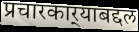
प्रचारकार्याबद्दल